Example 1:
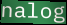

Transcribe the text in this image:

nalog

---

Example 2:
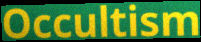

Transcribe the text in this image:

Occultism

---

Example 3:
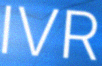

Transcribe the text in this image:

IVR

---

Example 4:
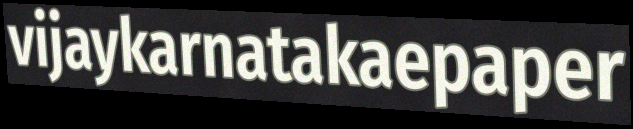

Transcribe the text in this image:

vijaykarnatakaepaper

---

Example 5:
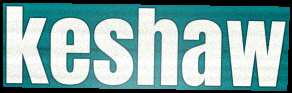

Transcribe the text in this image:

keshaw